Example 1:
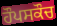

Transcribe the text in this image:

ਹੌਪਸਕੌਚ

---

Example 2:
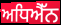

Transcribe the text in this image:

ਅਧਿਐੱਨ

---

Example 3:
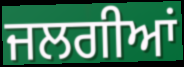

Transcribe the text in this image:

ਜਲਗੀਆਂ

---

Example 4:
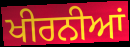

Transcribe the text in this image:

ਖੀਰਨੀਆਂ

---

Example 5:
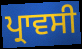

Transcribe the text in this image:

ਪ੍ਰਾਵਸੀ